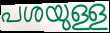
പശയുള്ള